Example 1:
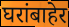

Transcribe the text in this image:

घरांबाहेर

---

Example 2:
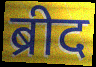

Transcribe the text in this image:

ब्रीद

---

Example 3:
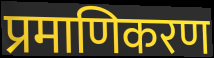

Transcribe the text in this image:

प्रमाणिकरण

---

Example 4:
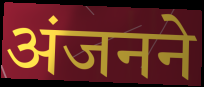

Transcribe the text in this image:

अंजनने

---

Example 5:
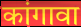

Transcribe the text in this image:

कांगावा